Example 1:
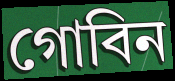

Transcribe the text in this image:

গোবিন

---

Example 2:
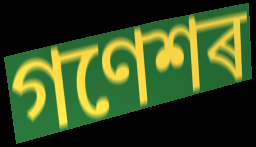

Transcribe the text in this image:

গণেশৰ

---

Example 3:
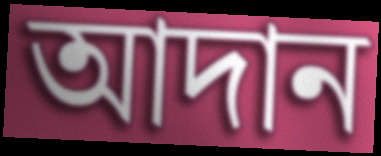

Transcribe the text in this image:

আদান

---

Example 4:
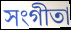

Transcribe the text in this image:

সংগীতা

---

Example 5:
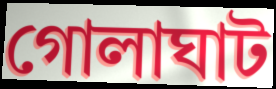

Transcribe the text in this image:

গোলাঘাট